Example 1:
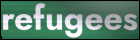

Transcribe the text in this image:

refugees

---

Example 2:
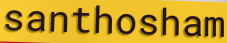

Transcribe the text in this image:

santhosham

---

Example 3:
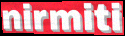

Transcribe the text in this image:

nirmiti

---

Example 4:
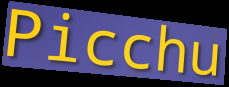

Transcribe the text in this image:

Picchu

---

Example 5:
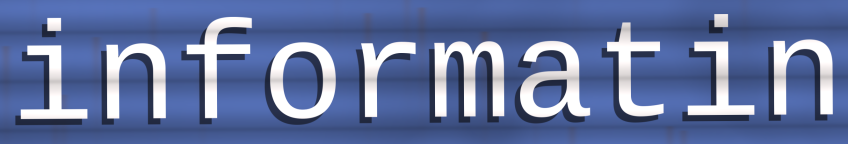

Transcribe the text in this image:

informatin